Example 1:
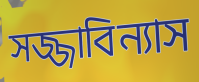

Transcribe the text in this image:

সজ্জাবিন্যাস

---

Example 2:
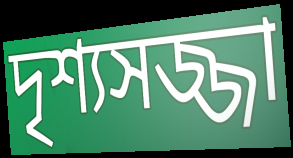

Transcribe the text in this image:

দৃশ্যসজ্জা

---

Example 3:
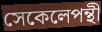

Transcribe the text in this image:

সেকেলেপন্থী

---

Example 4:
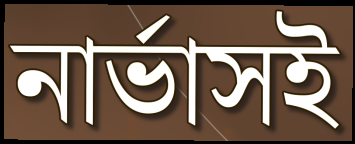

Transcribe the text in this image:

নার্ভাসই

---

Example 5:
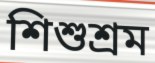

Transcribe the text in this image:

শিশুশ্রম